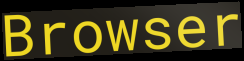
Browser